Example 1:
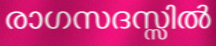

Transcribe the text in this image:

രാഗസദസ്സിൽ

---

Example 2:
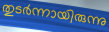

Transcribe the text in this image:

തുടർന്നായിരുന്നു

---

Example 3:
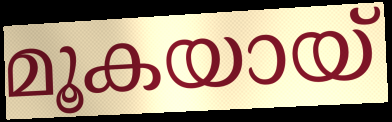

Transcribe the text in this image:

മൂകയായ്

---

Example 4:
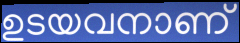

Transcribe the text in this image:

ഉടയവനാണ്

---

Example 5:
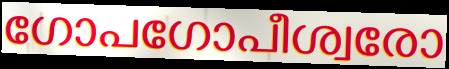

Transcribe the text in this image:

ഗോപഗോപീശ്വരോ